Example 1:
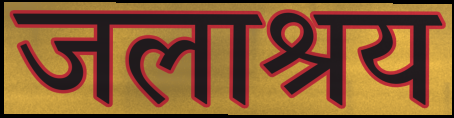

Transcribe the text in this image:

जलाश्रय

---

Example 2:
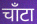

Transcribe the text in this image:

चाँटा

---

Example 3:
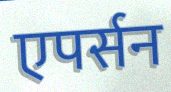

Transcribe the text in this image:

एपर्सन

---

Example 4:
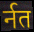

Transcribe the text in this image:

र्नत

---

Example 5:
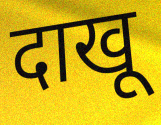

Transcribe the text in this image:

दाखू